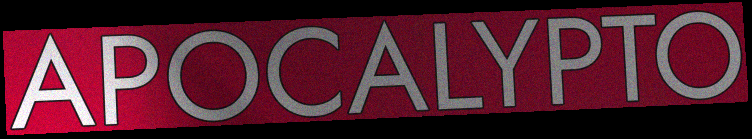
APOCALYPTO